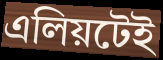
এলিয়টেই